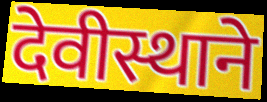
देवीस्थाने